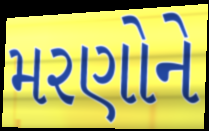
મરણોને